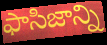
ఫాసిజాన్ని